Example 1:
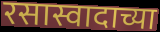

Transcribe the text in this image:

रसास्वादाच्या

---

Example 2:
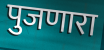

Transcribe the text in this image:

पुजणारा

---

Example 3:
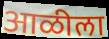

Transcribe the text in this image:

आळीला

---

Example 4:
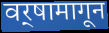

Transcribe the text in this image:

वर्षामागून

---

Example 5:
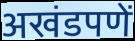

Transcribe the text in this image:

अखंडपणें